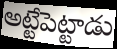
అట్టేపెట్టాడు